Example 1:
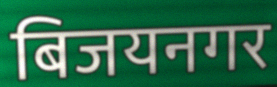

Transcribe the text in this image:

बिजयनगर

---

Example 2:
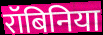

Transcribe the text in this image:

रॉबिनिया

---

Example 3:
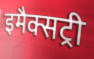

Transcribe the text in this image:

इमैक्सट्री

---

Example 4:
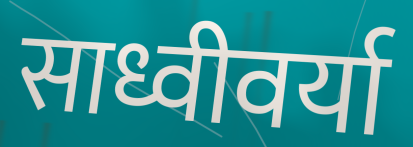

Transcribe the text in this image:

साध्वीवर्या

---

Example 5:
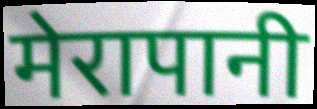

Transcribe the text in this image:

मेरापानी